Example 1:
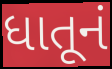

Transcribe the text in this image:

ધાતૂનં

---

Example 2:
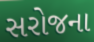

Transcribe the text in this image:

સરોજના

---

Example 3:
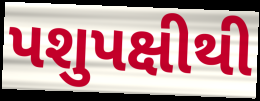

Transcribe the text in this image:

પશુપક્ષીથી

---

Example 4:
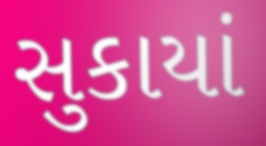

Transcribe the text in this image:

સુકાયાં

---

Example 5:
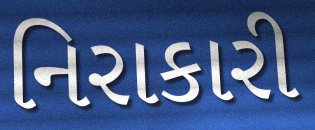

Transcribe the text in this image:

નિરાકારી